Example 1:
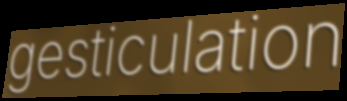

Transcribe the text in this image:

gesticulation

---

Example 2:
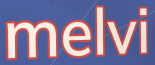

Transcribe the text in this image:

melvi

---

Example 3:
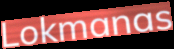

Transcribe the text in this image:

Lokmanas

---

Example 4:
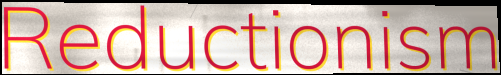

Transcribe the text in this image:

Reductionism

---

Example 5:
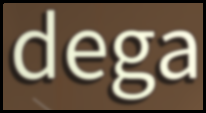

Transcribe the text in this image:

dega